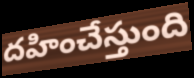
దహించేస్తుంది